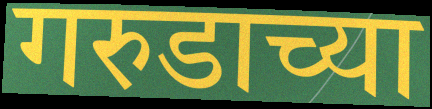
गरुडाच्या